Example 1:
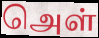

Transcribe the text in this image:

அெள்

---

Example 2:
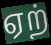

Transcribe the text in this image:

ஏற்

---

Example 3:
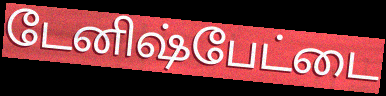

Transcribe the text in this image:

டேனிஷ்பேட்டை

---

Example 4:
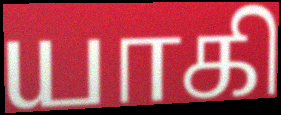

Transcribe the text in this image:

யாகி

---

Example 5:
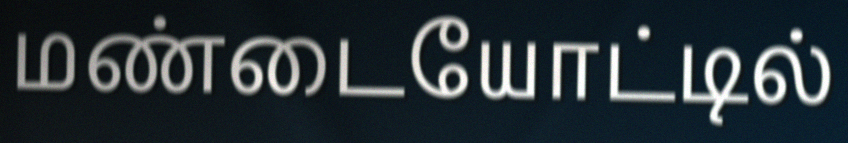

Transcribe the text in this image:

மண்டையோட்டில்